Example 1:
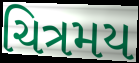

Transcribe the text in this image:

ચિત્રમય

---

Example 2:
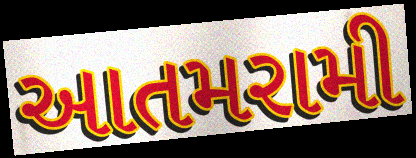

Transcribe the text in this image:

આતમરામી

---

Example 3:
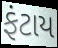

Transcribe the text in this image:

ફંટાય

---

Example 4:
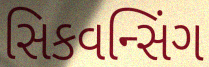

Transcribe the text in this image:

સિકવન્સિંગ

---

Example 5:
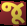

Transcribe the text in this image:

જૂ